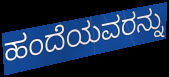
ಹಂದೆಯವರನ್ನು